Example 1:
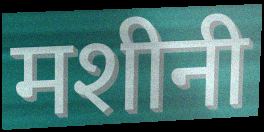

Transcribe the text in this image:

मशीनी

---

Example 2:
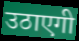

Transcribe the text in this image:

उठाएगी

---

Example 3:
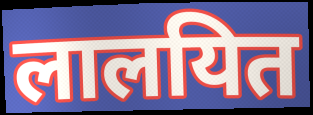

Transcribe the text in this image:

लालयित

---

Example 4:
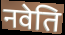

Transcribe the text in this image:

नवेति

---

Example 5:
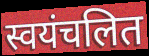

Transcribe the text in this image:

स्वयंचलित